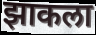
झाकला